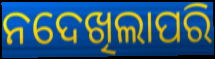
ନଦେଖିଲାପରି